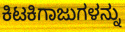
ಕಿಟಕಿಗಾಜುಗಳನ್ನು